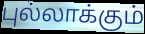
புல்லாக்கும்